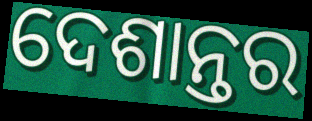
ଦେଶାନ୍ତର